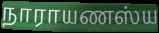
நாராயணஸ்ய